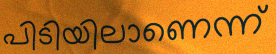
പിടിയിലാണെന്ന്